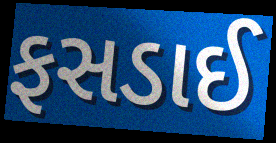
ફસડાઈ